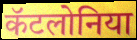
कॅटलोनिया